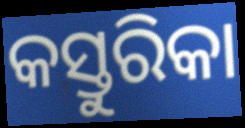
କସ୍ତୁରିକା